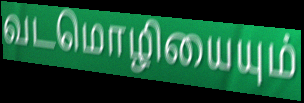
வடமொழியையும்